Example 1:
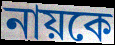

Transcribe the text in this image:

নায়কে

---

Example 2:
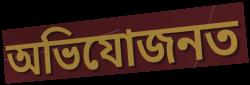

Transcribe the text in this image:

অভিযোজনত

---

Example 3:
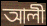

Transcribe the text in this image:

আলী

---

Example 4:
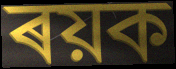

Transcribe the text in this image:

ৰয়ক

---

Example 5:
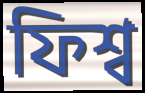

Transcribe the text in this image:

ফিশ্ব